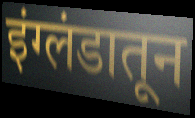
इंग्लंडातून